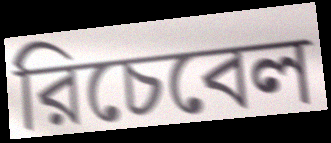
রিচেবেল